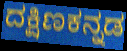
ದಕ್ಷಿಣಕನ್ನಡ